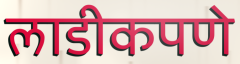
लाडीकपणे